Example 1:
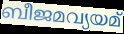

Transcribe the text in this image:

ബീജമവ്യയമ്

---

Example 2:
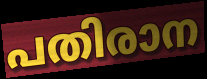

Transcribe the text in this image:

പതിരാന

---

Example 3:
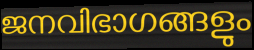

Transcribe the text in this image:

ജനവിഭാഗങ്ങളും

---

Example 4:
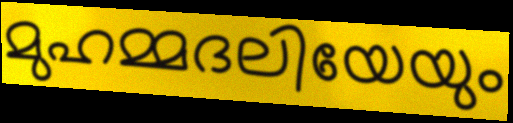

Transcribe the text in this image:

മുഹമ്മദലിയേയും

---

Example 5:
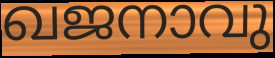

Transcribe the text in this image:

ഖജനാവു